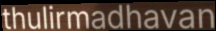
thulirmadhavan